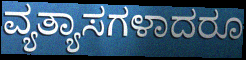
ವ್ಯತ್ಯಾಸಗಳಾದರೂ